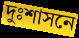
দুঃশাসনে